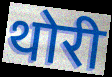
थोरी